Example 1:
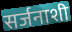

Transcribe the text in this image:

सर्जनाशी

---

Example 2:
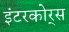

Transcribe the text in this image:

इंटरकोर्स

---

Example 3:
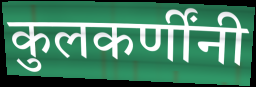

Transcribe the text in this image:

कुलकर्णींनी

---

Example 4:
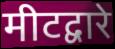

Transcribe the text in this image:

मीटद्वारे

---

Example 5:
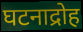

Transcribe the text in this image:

घटनाद्रोह